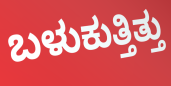
ಬಳುಕುತ್ತಿತ್ತು